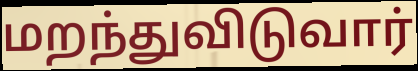
மறந்துவிடுவார்